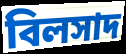
বিলসাদ